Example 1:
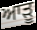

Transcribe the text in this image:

ਆੜੂ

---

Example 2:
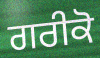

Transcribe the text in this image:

ਗਰੀਕੋ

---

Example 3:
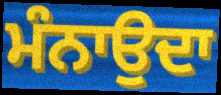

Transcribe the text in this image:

ਮੰਨਾਉਦਾ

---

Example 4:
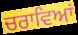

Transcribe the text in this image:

ਚਰਾਵਿਆਂ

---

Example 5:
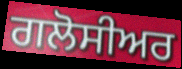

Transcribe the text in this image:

ਗਲੋਸੀਅਰ